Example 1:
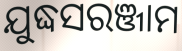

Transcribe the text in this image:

ଯୁଦ୍ଧସରଞ୍ଜାମ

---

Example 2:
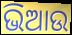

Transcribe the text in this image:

ଭିଆଉ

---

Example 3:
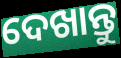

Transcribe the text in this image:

ଦେଖାନ୍ତୁ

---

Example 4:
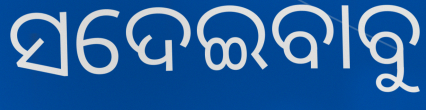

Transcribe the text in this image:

ସଦେଇବାବୁ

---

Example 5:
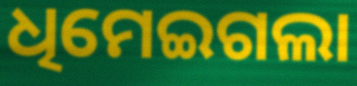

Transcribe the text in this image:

ଧିମେଇଗଲା